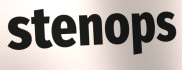
stenops